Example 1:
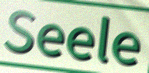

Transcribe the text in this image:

Seele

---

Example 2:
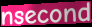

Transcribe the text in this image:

nsecond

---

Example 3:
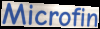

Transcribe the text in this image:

Microfin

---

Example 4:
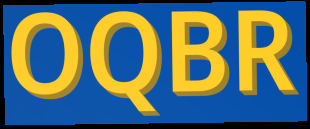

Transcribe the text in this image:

OQBR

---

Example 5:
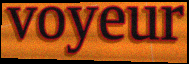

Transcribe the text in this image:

voyeur